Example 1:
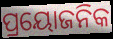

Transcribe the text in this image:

ପ୍ରୟୋଜନିକ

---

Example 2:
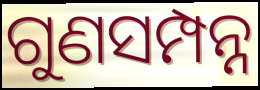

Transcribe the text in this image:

ଗୁଣସମ୍ପନ୍ନ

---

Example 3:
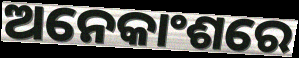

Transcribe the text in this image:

ଅନେକାଂଶରେ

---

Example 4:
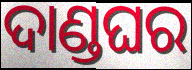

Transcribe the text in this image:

ଦାଣ୍ଡଘର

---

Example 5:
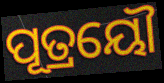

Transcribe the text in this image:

ପୂତ୍ରୟୌ